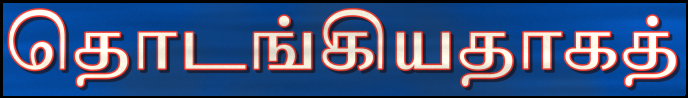
தொடங்கியதாகத்